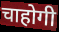
चाहोगी